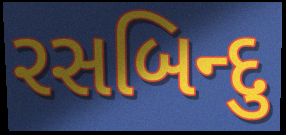
રસબિન્દુ